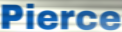
Pierce